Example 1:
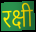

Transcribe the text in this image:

रक्षी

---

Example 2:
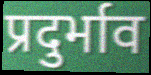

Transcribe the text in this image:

प्रदुर्भाव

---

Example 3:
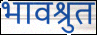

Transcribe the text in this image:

भावश्रुत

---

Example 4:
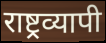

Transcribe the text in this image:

राष्ट्रव्यापी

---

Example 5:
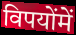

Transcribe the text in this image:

विपयोंमें